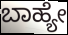
ಬಾಹ್ಯೇ